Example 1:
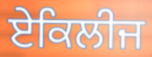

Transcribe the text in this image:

ਏਕਿਲੀਜ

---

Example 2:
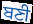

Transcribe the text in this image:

ਬਣੀ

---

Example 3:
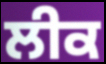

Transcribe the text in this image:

ਲੀਕ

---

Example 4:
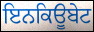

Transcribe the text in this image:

ਇਨਕਿਊਬੇਟ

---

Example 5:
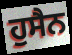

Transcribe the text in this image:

ਹੁਸੈਨ